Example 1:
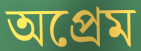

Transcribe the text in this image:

অপ্রেম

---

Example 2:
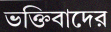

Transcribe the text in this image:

ভক্তিবাদের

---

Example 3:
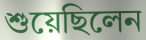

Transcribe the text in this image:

শুয়েছিলেন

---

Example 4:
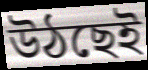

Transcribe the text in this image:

উঠছেই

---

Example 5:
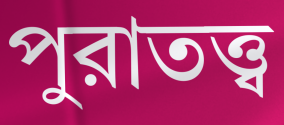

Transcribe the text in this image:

পুরাতত্ত্ব